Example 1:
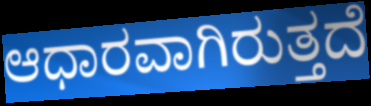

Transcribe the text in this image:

ಆಧಾರವಾಗಿರುತ್ತದೆ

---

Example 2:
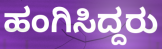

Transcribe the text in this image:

ಹಂಗಿಸಿದ್ದರು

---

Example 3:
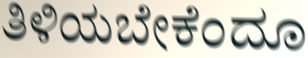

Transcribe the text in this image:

ತಿಳಿಯಬೇಕೆಂದೂ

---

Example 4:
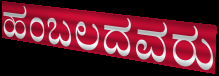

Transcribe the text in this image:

ಹಂಬಲದವರು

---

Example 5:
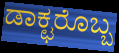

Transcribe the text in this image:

ಡಾಕ್ಟರೊಬ್ಬ